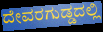
ದೇವರಗುಡ್ಡದಲ್ಲಿ